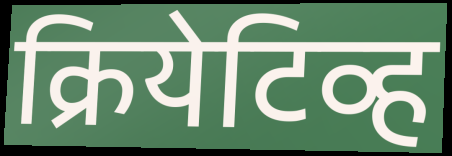
क्रियेटिव्ह